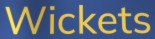
Wickets